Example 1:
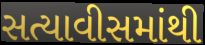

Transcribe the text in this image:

સત્યાવીસમાંથી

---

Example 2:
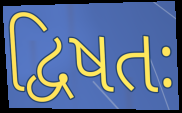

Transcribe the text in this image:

દ્વિષતઃ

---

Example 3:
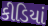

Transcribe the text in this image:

કીડિયાં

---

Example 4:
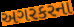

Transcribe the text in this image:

અગરકરના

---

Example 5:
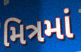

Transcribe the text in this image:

મિત્રમાં